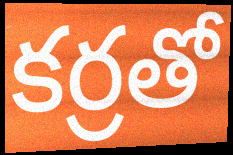
కర్రతో